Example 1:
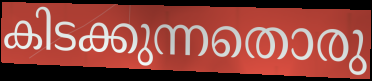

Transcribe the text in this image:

കിടക്കുന്നതൊരു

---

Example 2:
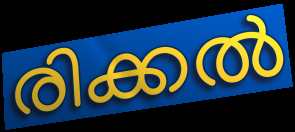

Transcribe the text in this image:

രിക്കൽ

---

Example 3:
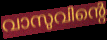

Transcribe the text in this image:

വാസുവിന്റെ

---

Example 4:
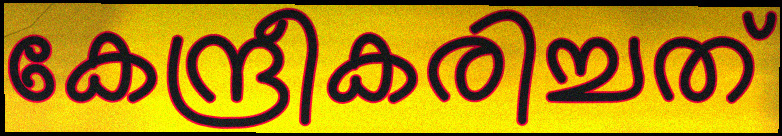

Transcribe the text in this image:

കേന്ദ്രീകരിച്ചത്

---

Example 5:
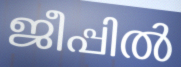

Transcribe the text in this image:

ജീപ്പിൽ